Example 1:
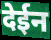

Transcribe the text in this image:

देईन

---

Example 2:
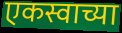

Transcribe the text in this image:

एकस्वाच्या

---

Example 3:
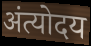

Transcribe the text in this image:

अंत्योदय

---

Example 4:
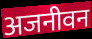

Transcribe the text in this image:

अजनीवन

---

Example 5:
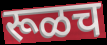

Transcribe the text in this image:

रूळच